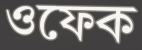
ওফেক